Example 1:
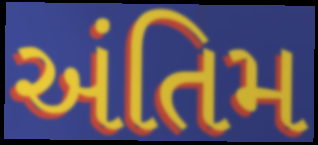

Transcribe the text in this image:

અંતિમ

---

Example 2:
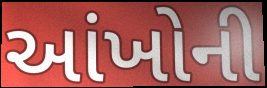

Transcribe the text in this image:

આંખોની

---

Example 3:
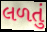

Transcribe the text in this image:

લળતું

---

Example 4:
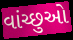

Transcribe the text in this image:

વાંચ્છુઓ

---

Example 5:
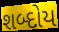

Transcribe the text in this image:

શબ્દોય